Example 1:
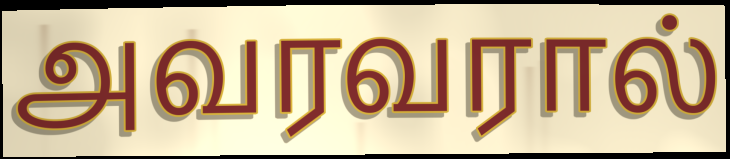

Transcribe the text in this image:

அவரவரால்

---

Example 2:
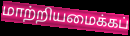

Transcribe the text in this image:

மாற்றியமைக்கப்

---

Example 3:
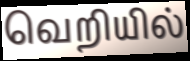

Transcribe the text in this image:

வெறியில்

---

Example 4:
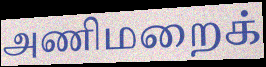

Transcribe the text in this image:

அணிமறைக்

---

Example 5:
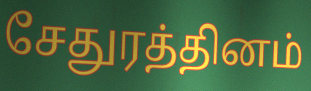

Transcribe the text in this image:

சேதுரத்தினம்